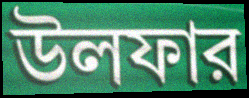
উলফার